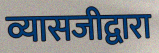
व्यासजीद्वारा